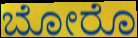
ಬೋರೊ